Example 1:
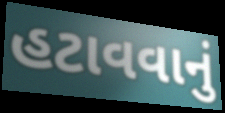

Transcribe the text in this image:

હટાવવાનું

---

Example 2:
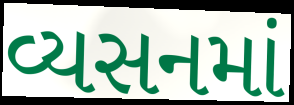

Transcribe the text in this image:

વ્યસનમાં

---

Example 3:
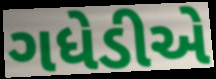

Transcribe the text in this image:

ગધેડીએ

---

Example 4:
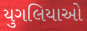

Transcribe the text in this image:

યુગલિયાઓ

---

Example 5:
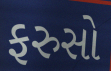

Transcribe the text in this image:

ફરુસો